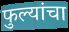
फुल्यांचा